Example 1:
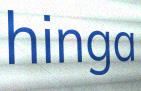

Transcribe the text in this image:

hinga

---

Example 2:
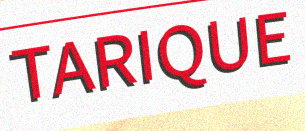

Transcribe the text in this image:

TARIQUE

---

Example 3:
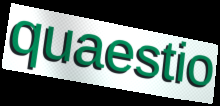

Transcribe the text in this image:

quaestio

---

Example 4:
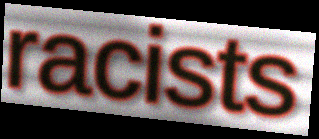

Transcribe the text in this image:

racists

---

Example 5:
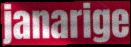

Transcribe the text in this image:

janarige